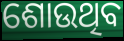
ଶୋଉଥିବ